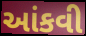
આંકવી